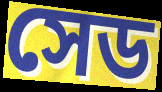
সেড